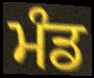
ਮੰਡ